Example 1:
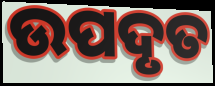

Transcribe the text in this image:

ଉପଦୃତ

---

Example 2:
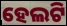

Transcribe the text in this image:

ହେଲଟି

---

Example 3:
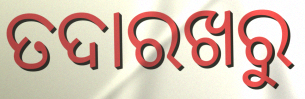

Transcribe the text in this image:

ତଦାରଖରୁ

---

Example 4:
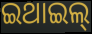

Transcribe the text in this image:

ଇଥାଇଲ୍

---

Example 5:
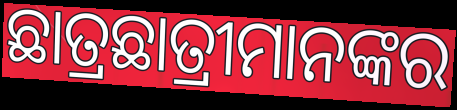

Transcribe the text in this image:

ଛାତ୍ରଛାତ୍ରୀମାନଙ୍କର